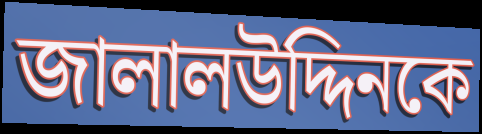
জালালউদ্দিনকে